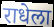
राधेला